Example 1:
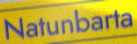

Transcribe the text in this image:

Natunbarta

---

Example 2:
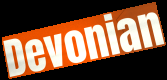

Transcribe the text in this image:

Devonian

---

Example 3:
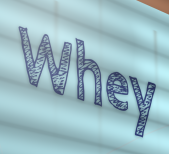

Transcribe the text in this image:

Whey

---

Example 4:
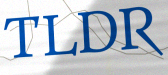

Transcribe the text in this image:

TLDR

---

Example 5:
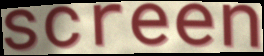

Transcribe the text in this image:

screen